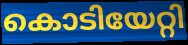
കൊടിയേറ്റി